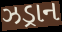
ઝડ્રાન